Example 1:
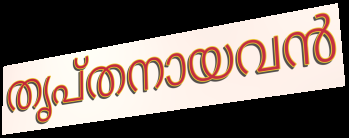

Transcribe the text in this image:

തൃപ്തനായവൻ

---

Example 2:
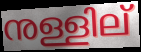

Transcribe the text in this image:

നുള്ളില്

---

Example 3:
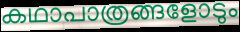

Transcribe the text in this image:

കഥാപാത്രങ്ങളോടും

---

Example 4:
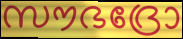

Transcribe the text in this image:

സൗഭദ്രോ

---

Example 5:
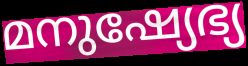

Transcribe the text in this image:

മനുഷ്യേഭ്യ